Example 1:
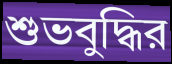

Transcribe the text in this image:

শুভবুদ্ধির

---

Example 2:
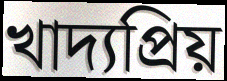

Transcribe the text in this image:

খাদ্যপ্রিয়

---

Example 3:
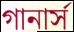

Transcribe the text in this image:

গানার্স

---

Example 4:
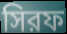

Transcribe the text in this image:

সিরফ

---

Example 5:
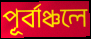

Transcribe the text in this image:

পূর্বাঞ্চলে